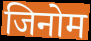
जिनोम